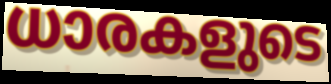
ധാരകളുടെ